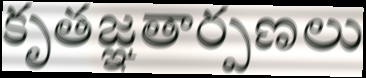
కృతజ్ఞతార్పణలు